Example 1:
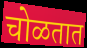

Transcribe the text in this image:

चोळतात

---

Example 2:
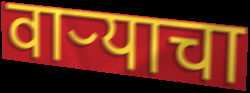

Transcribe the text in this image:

वाऱ्याचा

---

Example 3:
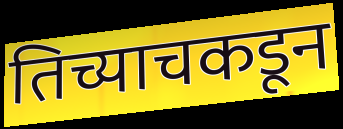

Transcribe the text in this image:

तिच्याचकडून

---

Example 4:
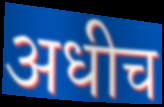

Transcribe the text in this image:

अधीच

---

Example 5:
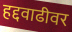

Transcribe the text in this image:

हद्दवाढीवर